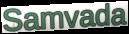
Samvada